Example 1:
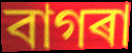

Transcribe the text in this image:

বাগৰা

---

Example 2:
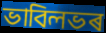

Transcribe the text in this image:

ভাবিলভৰ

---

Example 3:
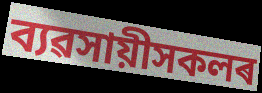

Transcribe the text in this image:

ব্যৱসায়ীসকলৰ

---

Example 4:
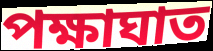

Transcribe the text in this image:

পক্ষাঘাত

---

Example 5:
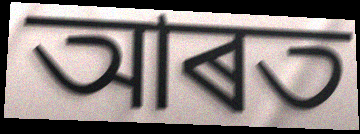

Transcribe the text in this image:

আৰত